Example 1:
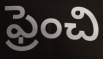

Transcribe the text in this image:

ఫ్రెంచి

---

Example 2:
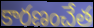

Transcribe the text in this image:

కారణంచేత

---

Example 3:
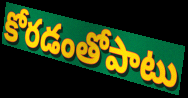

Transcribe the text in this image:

కోరడంతోపాటు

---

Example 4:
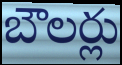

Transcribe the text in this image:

బౌలర్లు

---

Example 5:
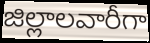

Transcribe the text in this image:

జిల్లాలవారీగా